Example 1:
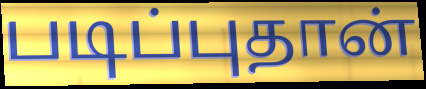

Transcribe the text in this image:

படிப்புதான்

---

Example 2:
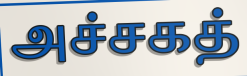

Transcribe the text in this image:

அச்சகத்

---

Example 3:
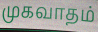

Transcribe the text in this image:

முகவாதம்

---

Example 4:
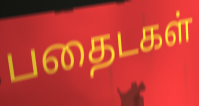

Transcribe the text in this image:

பதைடகள்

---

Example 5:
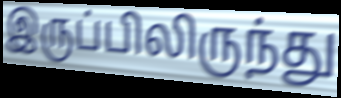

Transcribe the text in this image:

இருப்பிலிருந்து